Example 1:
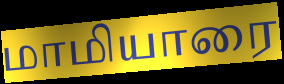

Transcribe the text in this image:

மாமியாரை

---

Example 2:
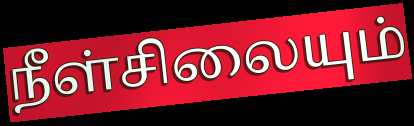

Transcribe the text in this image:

நீள்சிலையும்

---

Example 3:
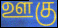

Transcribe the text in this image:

ஊகு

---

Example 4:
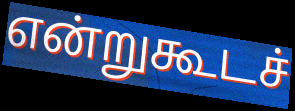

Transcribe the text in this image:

என்றுகூடச்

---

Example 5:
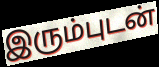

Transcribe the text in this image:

இரும்புடன்